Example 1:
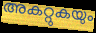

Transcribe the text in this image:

അകറ്റുകയും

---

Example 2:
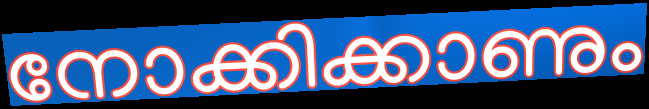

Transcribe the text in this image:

നോക്കിക്കാണും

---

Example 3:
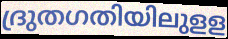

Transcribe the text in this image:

ദ്രുതഗതിയിലുളള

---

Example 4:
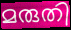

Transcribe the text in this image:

മരുതി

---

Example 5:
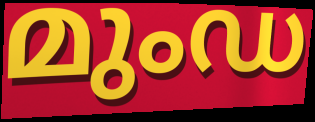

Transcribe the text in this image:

മുംഡ